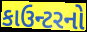
કાઉન્ટરનો